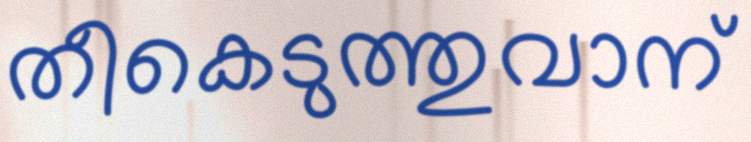
തീകെടുത്തുവാന്